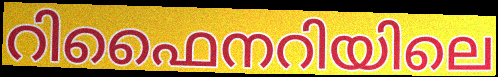
റിഫൈനറിയിലെ